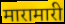
मारामारी